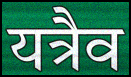
यत्रैव